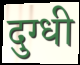
दुग्धी